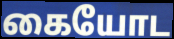
கையோட